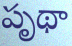
పృథా